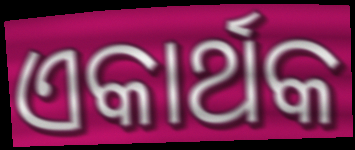
ଏକାର୍ଥକ